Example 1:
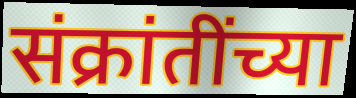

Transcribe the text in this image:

संक्रांतींच्या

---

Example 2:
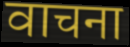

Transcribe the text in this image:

वाचना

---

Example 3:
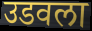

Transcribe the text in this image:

उडवला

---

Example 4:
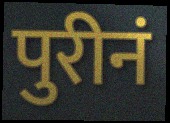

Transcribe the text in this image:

पुरीनं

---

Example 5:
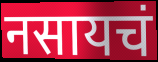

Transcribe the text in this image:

नसायचं